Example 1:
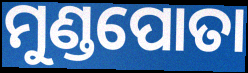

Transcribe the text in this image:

ମୁଣ୍ଡପୋତା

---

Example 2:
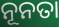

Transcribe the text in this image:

ନୂନତା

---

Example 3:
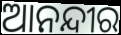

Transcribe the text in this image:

ଆନନ୍ଦୀର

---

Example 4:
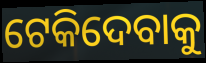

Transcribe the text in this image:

ଟେକିଦେବାକୁ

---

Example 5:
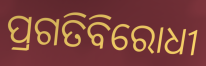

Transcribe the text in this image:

ପ୍ରଗତିବିରୋଧୀ